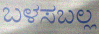
ಬಳಸಬಲ್ಲ